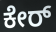
ಕೇರ್